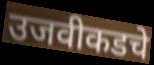
उजवीकडचे